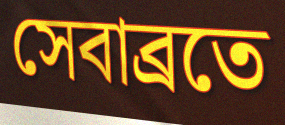
সেবাব্রতে